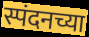
स्पंदनच्या